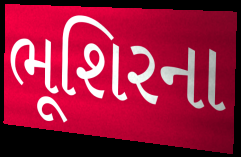
ભૂશિરના